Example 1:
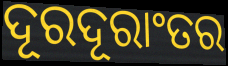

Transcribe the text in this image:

ଦୂରଦୂରାଂତର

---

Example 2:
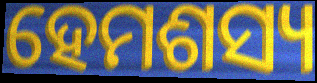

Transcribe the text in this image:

ହେମଶସ୍ୟ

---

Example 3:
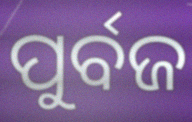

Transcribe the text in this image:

ପୁର୍ବଜ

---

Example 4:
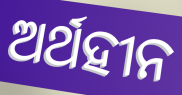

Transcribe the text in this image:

ଅର୍ଥହୀନ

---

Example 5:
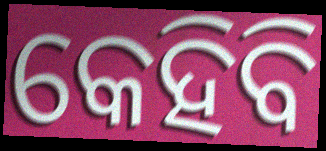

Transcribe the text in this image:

କେହିବି